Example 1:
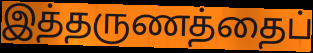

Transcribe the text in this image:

இத்தருணத்தைப்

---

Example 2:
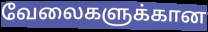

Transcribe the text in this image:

வேலைகளுக்கான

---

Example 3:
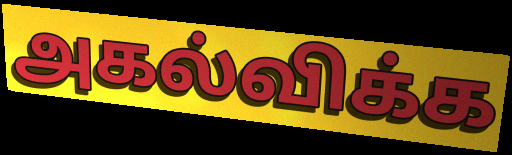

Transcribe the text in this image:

அகல்விக்க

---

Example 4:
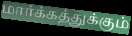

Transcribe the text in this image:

மார்க்கத்துக்கும்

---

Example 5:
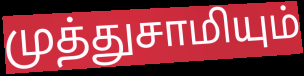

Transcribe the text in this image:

முத்துசாமியும்